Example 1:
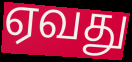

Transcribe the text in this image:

ஏவது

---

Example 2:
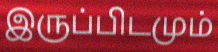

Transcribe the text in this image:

இருப்பிடமும்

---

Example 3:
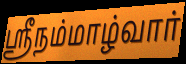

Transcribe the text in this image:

ஸ்ரீநம்மாழ்வார்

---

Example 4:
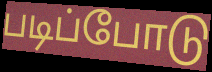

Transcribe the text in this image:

படிப்போடு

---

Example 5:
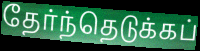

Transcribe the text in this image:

தேர்ந்தெடுக்கப்